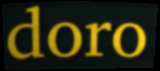
doro